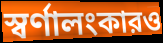
স্বর্ণালংকারও